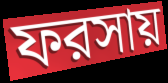
ফরসায়